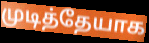
முடித்தேயாக